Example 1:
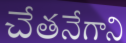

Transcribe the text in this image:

చేతనేగాని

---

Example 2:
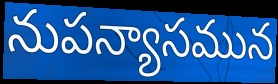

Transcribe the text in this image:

నుపన్యాసమున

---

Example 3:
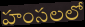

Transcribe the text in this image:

హంసలలో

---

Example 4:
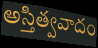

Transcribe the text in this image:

అస్తిత్వవాదం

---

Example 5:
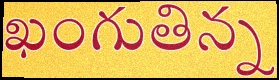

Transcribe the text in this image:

ఖంగుతిన్న